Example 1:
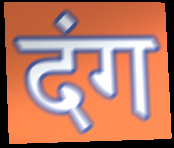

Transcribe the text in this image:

दंग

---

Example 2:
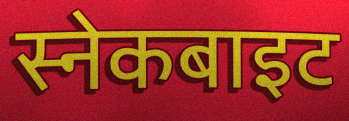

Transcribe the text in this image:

स्नेकबाइट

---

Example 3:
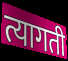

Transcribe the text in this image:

त्यागती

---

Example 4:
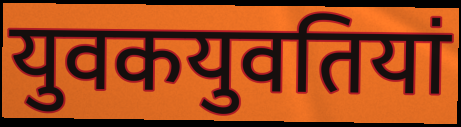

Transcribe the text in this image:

युवकयुवतियां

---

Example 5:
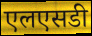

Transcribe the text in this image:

एलएसडी